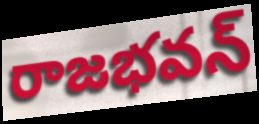
రాజభవన్